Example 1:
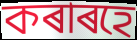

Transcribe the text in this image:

কৰাৰহে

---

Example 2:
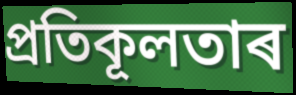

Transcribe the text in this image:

প্ৰতিকূলতাৰ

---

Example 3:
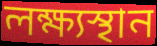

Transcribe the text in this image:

লক্ষ্যস্থান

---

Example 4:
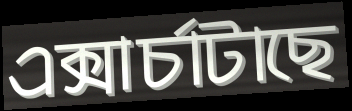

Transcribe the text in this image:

এক্সাৰ্চাটাছে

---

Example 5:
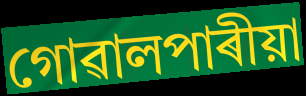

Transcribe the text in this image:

গোৱালপাৰীয়া